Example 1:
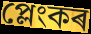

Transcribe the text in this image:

প্লেংকৰ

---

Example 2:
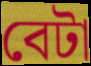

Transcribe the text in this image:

বেটা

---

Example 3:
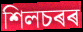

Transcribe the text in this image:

শিলচৰৰ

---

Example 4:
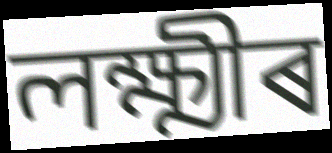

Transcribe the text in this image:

লক্ষ্মীৰ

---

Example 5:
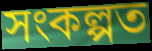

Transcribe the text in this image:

সংকল্পত